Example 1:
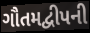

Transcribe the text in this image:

ગૌતમદ્વીપની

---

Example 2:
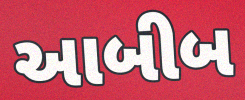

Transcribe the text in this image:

આબીબ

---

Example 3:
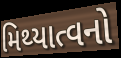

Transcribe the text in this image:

મિથ્યાત્વનો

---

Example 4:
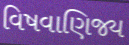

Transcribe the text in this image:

વિષવાણિજ્ય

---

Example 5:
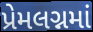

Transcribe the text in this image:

પ્રેમલગ્નમાં